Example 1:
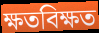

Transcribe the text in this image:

ক্ষতবিক্ষত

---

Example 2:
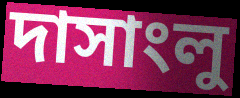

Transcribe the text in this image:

দাসাংলু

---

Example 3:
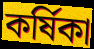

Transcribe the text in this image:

কর্ষিকা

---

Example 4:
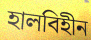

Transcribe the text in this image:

হালবিহীন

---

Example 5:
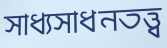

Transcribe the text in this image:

সাধ্যসাধনতত্ত্ব